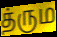
த்ரும